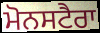
ਮੋਨਸਟੈਰਾ